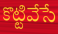
కొట్టివేసే